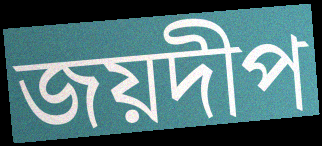
জয়দীপ